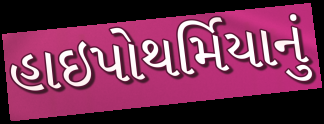
હાઇપોથર્મિયાનું